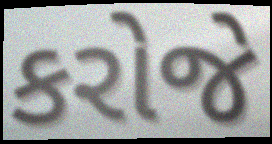
કરોજે